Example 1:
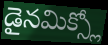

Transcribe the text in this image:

డైనమిక్స్లో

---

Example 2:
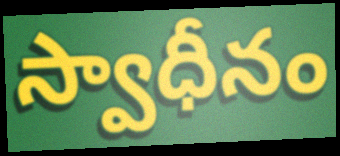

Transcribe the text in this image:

స్వాధీనం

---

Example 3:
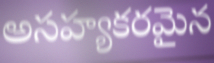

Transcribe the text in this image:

అసహ్యకరమైన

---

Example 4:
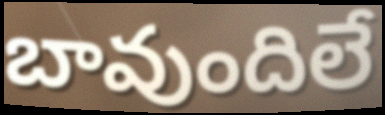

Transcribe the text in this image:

బావుందిలే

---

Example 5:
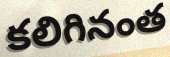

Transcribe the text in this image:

కలిగినంత